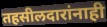
तहसीलदारांनाही